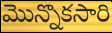
మొన్నొకసారి